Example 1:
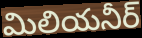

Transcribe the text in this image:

మిలియనీర్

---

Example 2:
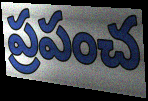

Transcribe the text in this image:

ప్రపంచ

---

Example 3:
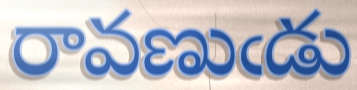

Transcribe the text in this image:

రావణుఁడు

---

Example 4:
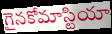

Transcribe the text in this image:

గైనకోమాస్టియా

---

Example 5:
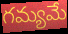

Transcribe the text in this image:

గమ్యమే